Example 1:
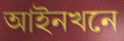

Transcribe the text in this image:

আইনখনে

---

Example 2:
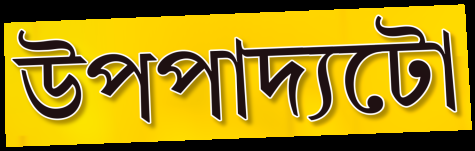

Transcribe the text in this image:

উপপাদ্যটো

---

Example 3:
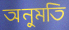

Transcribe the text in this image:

অনুমতি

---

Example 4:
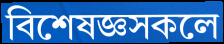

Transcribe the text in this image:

বিশেষজ্ঞসকলে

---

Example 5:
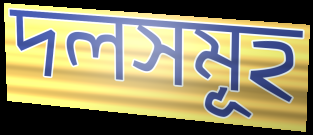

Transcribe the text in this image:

দলসমূহ